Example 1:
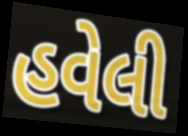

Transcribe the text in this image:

હવેલી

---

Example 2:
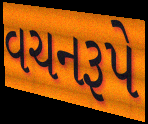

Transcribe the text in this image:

વચનરૂપે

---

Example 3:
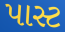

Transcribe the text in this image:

પાસ્ટ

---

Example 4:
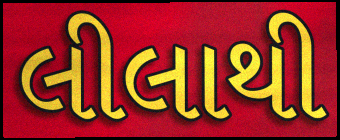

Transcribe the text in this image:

લીલાથી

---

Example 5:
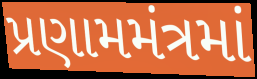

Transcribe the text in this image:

પ્રણામમંત્રમાં